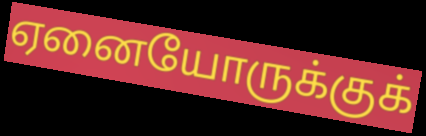
ஏனையோருக்குக்